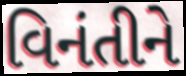
વિનંતીને